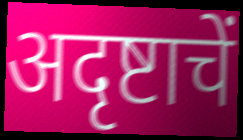
अदृष्टाचें